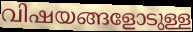
വിഷയങ്ങളോടുള്ള